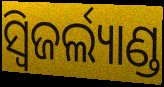
ସ୍ୱିଜର୍ଲ୍ୟାଣ୍ଡ